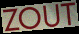
ZOUT